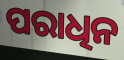
ପରାଧିନ